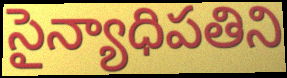
సైన్యాధిపతిని